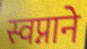
स्वप्नाने